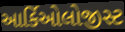
આર્કિઓલોજીસ્ટ